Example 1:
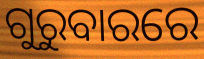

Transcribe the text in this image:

ଗୁରୁବାରରେ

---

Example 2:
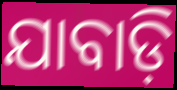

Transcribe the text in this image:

ଯାବାଡ଼ି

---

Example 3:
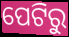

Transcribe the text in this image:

ପେଟିରୁ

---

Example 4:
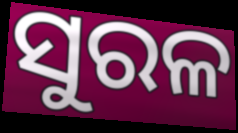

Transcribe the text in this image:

ସୁରଳ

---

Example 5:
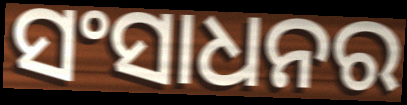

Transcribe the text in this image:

ସଂସାଧନର